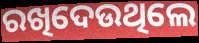
ରଖିଦେଉଥିଲେ